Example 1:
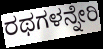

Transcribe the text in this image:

ರಥಗಳನ್ನೇರಿ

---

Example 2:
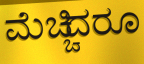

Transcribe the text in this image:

ಮೆಚ್ಚಿದರೂ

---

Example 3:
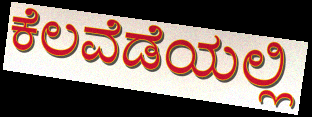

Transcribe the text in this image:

ಕೆಲವೆಡೆಯಲ್ಲಿ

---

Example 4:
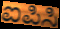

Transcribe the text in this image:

ಐಪಿಸಿ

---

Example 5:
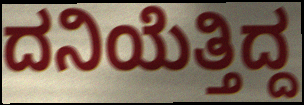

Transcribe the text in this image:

ದನಿಯೆತ್ತಿದ್ದ